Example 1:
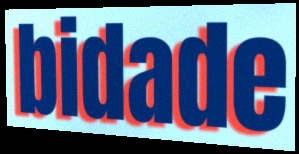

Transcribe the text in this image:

bidade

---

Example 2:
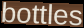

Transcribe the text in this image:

bottles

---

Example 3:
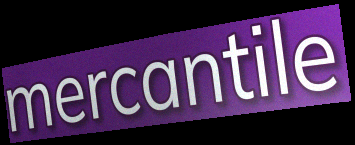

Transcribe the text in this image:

mercantile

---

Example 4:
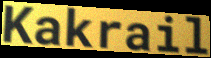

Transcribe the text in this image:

Kakrail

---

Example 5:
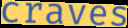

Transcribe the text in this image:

craves